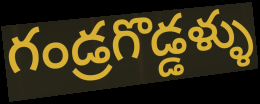
గండ్రగొడ్డళ్ళు